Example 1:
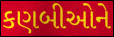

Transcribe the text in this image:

કણબીઓને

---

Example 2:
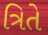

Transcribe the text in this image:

ત્રિતે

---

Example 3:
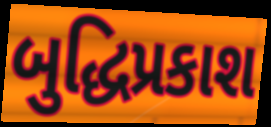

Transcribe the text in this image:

બુદ્ધિપ્રકાશ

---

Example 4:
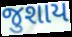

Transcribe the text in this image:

જુશાય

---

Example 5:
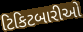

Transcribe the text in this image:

ટિકિટબારીઓ